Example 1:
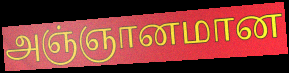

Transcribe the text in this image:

அஞ்ஞானமான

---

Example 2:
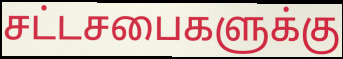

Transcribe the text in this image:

சட்டசபைகளுக்கு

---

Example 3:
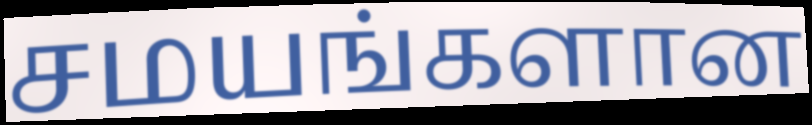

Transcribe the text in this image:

சமயங்களான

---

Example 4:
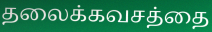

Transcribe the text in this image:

தலைக்கவசத்தை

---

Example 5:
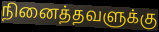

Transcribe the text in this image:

நினைத்தவளுக்கு